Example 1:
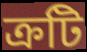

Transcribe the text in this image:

ক্রটি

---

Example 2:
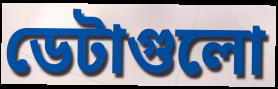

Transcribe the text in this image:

ডেটাগুলো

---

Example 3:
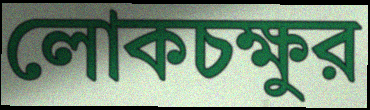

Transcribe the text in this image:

লোকচক্ষুর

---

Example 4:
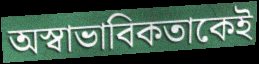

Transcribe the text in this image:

অস্বাভাবিকতাকেই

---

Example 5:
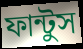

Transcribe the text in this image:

ফান্টুস